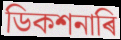
ডিকশনাৰি